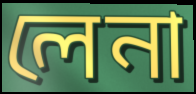
লেনা